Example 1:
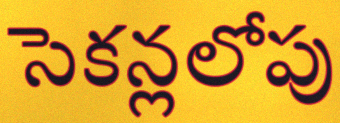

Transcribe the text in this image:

సెకన్లలోపు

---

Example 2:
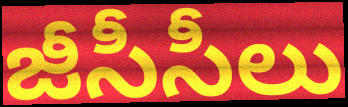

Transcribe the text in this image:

జీసీసీలు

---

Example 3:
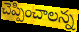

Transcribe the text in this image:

చెప్పించాలన్న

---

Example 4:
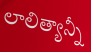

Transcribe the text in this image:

లాలిత్యాన్నీ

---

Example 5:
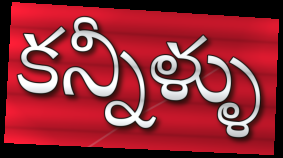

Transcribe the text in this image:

కన్నీళ్ళు